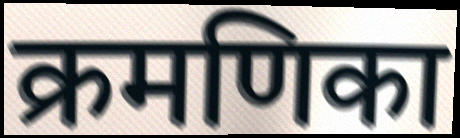
क्रमणिका